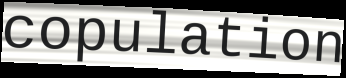
copulation